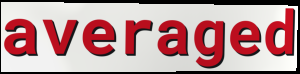
averaged